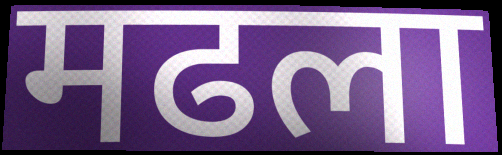
मढला